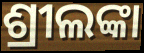
ଶ୍ରୀଲଙ୍କା